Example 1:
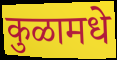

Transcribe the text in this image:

कुळामधे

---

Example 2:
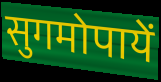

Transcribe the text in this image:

सुगमोपायें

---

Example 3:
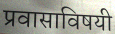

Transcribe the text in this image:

प्रवासाविषयी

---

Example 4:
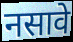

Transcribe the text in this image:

नसावे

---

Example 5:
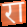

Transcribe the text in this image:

रा